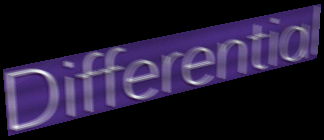
Differential